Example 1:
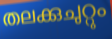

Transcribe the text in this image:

തലക്കുചുറ്റും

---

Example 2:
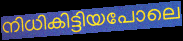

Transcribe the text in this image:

നിധികിട്ടിയപോലെ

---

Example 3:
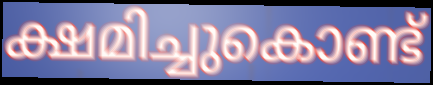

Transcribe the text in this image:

ക്ഷമിച്ചുകൊണ്ട്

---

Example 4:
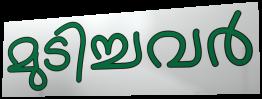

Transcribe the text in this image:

മുടിച്ചവർ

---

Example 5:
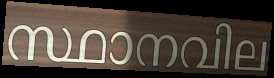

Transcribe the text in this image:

സ്ഥാനവില